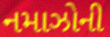
નમાઝોની